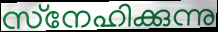
സ്‌നേഹിക്കുന്നു